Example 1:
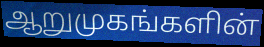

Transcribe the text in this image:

ஆறுமுகங்களின்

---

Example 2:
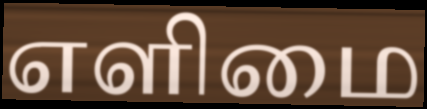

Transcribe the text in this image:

எளிமை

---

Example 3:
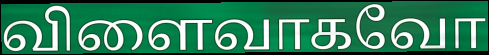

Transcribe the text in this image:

விளைவாகவோ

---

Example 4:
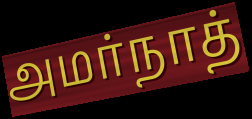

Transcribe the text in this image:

அமர்நாத்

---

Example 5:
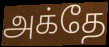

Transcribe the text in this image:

அக்தே